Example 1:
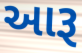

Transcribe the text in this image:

આરૂ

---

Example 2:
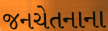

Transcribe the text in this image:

જનચેતનાના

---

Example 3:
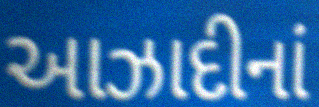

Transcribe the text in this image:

આઝાદીનાં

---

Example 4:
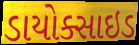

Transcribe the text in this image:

ડાયોક્સાઇડ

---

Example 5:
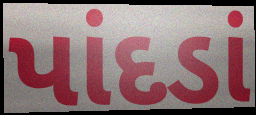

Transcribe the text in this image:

પાંદડાં